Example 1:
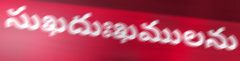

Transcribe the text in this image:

సుఖదుఃఖములను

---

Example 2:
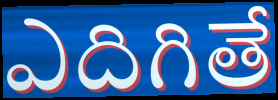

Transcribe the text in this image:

ఎదిగితే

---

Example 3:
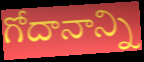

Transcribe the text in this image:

గోదానాన్ని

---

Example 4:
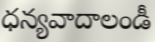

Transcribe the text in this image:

ధన్యవాదాలండీ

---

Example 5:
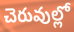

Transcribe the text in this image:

చెరువుల్లో